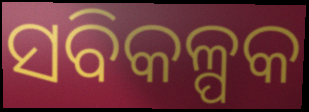
ସବିକଳ୍ପକ